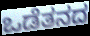
ಒಡೆತನದ